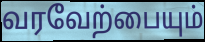
வரவேற்பையும்